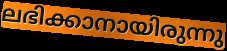
ലഭിക്കാനായിരുന്നു